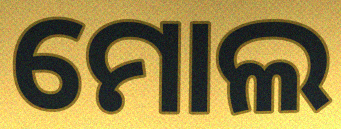
ମୋଲ